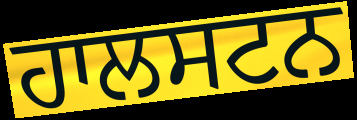
ਹਾਲਸਟਨ